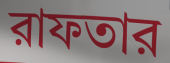
রাফতার